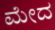
ಮೇದ